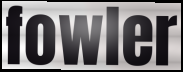
fowler